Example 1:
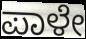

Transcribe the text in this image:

ಪಾಳೇ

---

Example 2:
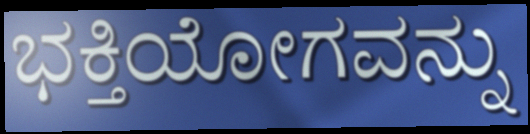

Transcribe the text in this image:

ಭಕ್ತಿಯೋಗವನ್ನು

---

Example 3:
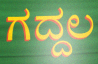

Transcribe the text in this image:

ಗದ್ದಲ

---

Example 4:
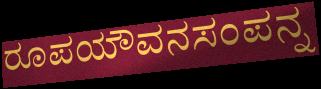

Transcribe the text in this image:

ರೂಪಯೌವನಸಂಪನ್ನ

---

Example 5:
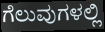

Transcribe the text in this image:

ಗೆಲುವುಗಳಲ್ಲಿ